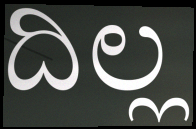
ದಿಲ್ಲ